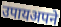
उपायअपने